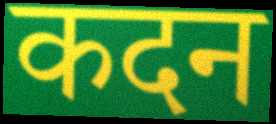
कदन